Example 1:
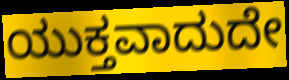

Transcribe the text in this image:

ಯುಕ್ತವಾದುದೇ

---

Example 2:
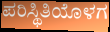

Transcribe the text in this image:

ಪರಿಸ್ಥಿತಿಯೊಳಗ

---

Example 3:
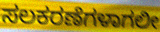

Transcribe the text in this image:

ಸಲಕರಣೆಗಳಾಗಲೀ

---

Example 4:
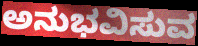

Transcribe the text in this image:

ಅನುಭವಿಸುವ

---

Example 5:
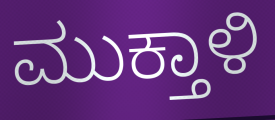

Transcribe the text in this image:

ಮುಕ್ತಾಳಿ